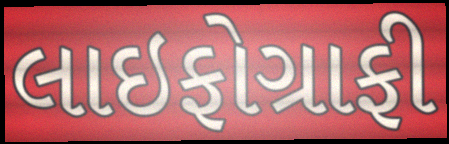
લાઇફોગ્રાફી